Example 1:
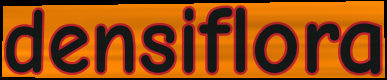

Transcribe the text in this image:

densiflora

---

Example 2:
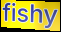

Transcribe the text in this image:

fishy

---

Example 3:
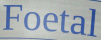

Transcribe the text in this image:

Foetal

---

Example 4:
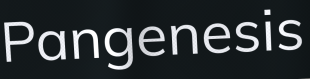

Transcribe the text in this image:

Pangenesis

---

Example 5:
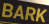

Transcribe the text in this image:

BARK